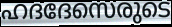
ഹദദേസെരുടെ